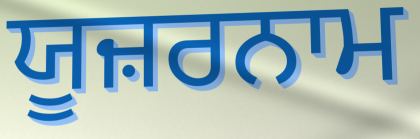
ਯੂਜ਼ਰਨਾਮ